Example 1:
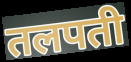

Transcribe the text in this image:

तलपती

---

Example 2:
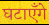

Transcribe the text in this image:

घटाएँगे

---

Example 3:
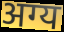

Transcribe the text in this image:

अग्य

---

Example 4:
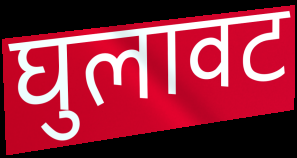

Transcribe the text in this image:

घुलावट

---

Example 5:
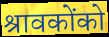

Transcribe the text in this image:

श्रावकोंको